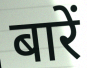
बारें